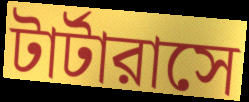
টার্টারাসে